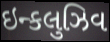
ઇન્કલુઝિવ